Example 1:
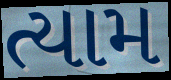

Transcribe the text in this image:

ત્યામ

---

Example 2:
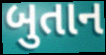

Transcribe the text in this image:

બુતાન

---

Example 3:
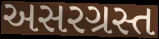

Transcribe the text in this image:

અસરગ્રસ્ત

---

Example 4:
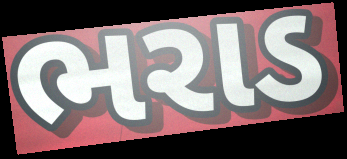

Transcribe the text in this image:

ભરાડ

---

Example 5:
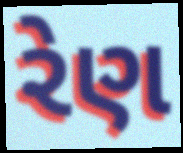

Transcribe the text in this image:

રેણ